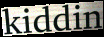
kiddin